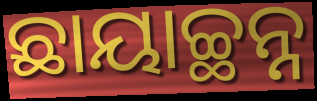
ଛାୟାଚ୍ଛନ୍ନ